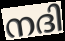
നദി